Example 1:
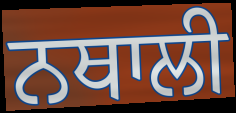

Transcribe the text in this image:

ਨਥਾਲੀ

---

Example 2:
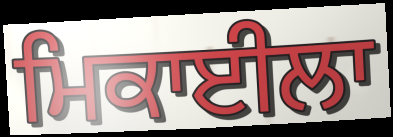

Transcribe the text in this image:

ਮਿਕਾਈਲਾ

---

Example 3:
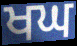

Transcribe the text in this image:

ਖਘ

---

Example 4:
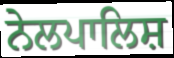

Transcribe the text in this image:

ਨੇਲਪਾਲਿਸ਼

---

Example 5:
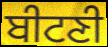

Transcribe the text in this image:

ਬੀਟਣੀ